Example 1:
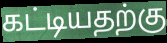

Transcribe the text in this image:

கட்டியதற்கு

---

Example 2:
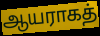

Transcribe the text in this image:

ஆயராகத்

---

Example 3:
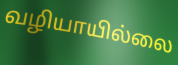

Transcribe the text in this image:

வழியாயில்லை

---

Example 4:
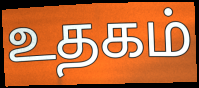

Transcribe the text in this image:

உதகம்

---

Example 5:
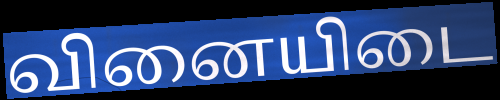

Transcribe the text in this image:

வினையிடை